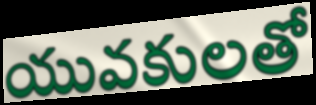
యువకులతో